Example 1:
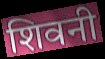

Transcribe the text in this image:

शिवनी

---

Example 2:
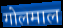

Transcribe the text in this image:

गोलमाल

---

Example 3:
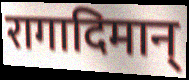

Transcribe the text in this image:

रागादिमान्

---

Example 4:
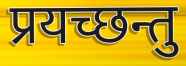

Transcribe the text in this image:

प्रयच्छन्तु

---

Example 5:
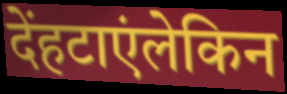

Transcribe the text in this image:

देंहटाएंलेकिन